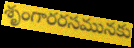
శృంగారరసమునకు